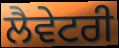
ਲੈਵੇਟਰੀ